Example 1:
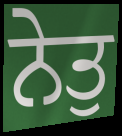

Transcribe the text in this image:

ਨੇਤੁ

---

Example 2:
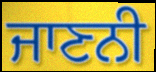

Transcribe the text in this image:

ਜਾਣਨੀ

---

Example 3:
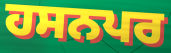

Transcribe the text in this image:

ਹਸਨਪਰ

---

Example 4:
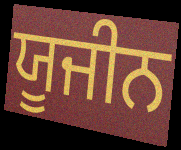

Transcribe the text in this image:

ਯੂਜੀਨ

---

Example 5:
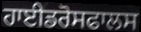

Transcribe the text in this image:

ਹਾਈਡਰੋਸਫਾਲਸ